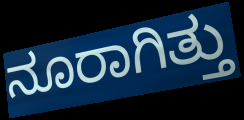
ನೂರಾಗಿತ್ತು